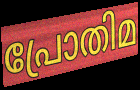
പ്രോതിമ